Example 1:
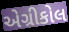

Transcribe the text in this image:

એગ્રીકોલ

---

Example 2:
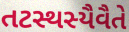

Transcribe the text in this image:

તટસ્થસ્યૈવૈતે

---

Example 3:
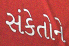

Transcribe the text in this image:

સંકેતોને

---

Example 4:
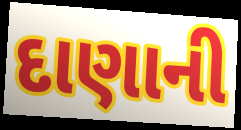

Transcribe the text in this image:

દાણાની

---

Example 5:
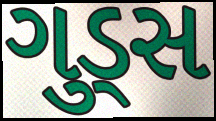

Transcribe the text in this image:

ગુડ્સ